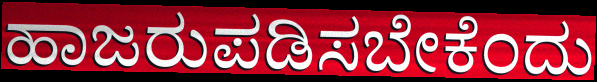
ಹಾಜರುಪಡಿಸಬೇಕೆಂದು